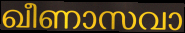
ഖീണാസവാ